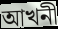
আখনী